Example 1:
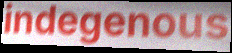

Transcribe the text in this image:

indegenous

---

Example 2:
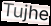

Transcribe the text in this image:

Tujhe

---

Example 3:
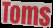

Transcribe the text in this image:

Toms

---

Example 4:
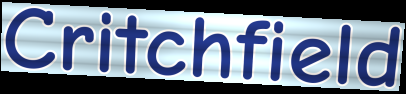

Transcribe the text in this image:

Critchfield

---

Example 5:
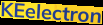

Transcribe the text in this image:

KEelectron